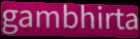
gambhirta